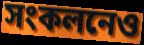
সংকলনেও